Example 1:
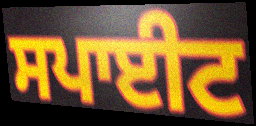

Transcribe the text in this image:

ਸਪਾਈਟ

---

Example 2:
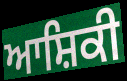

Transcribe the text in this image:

ਆਸ਼ਿਕੀ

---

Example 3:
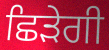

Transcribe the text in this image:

ਛਿੜੇਗੀ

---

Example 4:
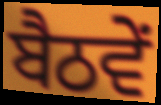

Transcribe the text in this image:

ਬੈਠਵੇਂ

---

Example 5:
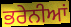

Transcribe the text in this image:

ਭਰੇਨੀਆਂ